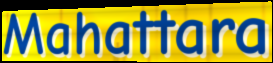
Mahattara